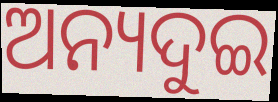
ଅନ୍ୟଦୁଇ